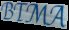
BTMA